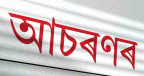
আচৰণৰ